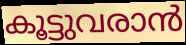
കൂട്ടുവരാൻ